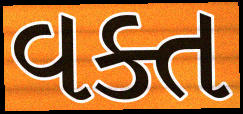
વક્ત